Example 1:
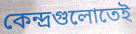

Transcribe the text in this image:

কেন্দ্রগুলোতেই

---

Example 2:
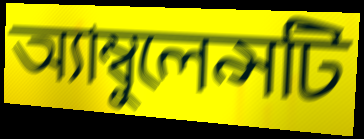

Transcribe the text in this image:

অ্যাম্বুলেন্সটি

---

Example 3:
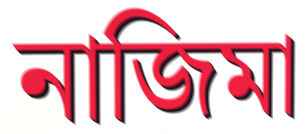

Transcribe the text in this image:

নাজিমা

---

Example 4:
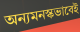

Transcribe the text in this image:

অন্যমনস্কভাবেই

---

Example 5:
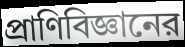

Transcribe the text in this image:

প্রাণিবিজ্ঞানের